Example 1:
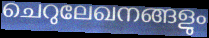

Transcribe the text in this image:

ചെറുലേഖനങ്ങളും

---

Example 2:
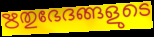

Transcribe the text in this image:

ഋതുഭേദങ്ങളുടെ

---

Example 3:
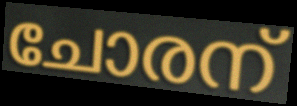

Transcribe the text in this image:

ചോരന്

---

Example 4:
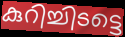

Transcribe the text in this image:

കുറിച്ചിടട്ടെ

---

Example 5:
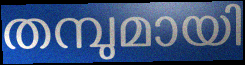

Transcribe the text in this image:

തമ്പുമായി